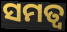
ସମତ୍ଵ